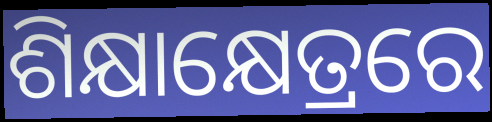
ଶିକ୍ଷାକ୍ଷେତ୍ରରେ